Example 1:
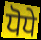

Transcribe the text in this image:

ਧੋਧੇ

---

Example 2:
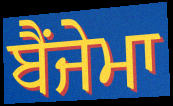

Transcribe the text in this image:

ਬੈਂਜੇਮਾ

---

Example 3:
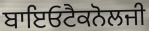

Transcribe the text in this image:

ਬਾਇਓਟੈਕਨੋਲਜੀ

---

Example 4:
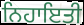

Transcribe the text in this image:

ਨਿਹਾਇਤੀ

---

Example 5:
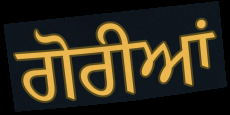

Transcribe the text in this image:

ਗੋਰੀਆਂ